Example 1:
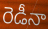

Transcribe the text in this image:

రెడీనా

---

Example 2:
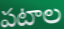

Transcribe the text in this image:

పటాల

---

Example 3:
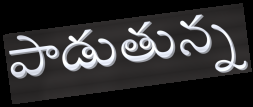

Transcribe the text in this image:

పాడుతున్న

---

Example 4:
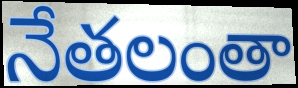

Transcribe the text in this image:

నేతలంతా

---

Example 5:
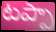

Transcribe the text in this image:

టప్పా